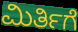
ಮಿರ್ತಿಗೆ